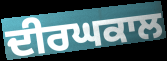
ਦੀਰਘਕਾਲ